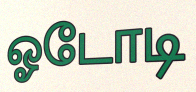
ஓடோடி